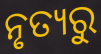
ନୃତ୍ୟରୁ